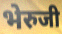
भेरुजी